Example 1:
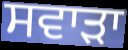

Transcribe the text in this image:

ਸਵਾੜਾ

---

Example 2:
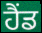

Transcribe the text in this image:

ਹੈਂਡ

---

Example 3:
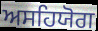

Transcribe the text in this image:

ਅਸਹਿਯੋਗ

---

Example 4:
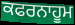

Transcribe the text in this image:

ਕਫਰਨਾਹੂਮ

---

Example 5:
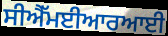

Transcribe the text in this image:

ਸੀਐੱਮਈਆਰਆਈ